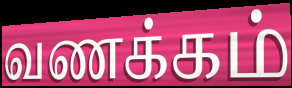
வணக்கம்